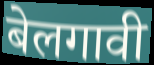
बेलगावी